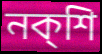
নক্‌শি